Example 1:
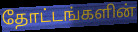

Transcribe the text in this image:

தோட்டங்களின்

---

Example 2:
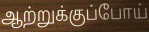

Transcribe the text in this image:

ஆற்றுக்குப்போய்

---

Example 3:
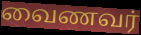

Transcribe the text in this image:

வைணவர்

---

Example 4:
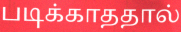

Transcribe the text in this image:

படிக்காததால்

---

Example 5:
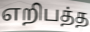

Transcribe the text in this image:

எறிபத்த